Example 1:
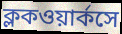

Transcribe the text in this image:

ক্লকওয়ার্কসে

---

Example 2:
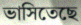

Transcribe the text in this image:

ভাসিতেছে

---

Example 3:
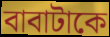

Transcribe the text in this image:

বাবাটাকে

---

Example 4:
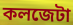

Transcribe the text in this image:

কলজেটা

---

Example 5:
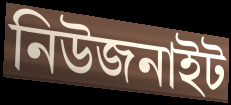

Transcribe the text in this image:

নিউজনাইট